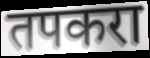
तपकरा